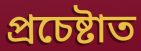
প্ৰচেষ্টাত